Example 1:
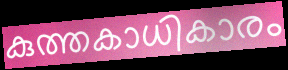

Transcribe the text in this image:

കുത്തകാധികാരം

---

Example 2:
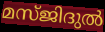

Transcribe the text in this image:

മസ്ജിദുൽ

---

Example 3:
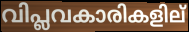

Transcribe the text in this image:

വിപ്ലവകാരികളില്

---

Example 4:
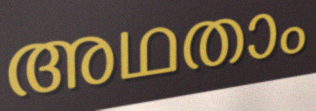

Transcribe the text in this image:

അഥതാം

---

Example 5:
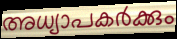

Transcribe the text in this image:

അധ്യാപകർക്കും